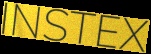
INSTEX